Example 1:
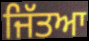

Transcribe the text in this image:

ਜਿੱਤਆ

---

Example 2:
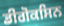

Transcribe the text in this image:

ਡੀਗੋਕਸਿਨ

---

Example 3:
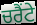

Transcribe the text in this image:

ਚਰੈਂਟੇ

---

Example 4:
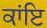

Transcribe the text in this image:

ਕਾਂਇ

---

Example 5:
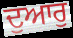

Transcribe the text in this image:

ਦੁਆਰੁ